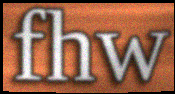
fhw